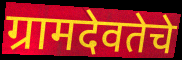
ग्रामदेवतेचे